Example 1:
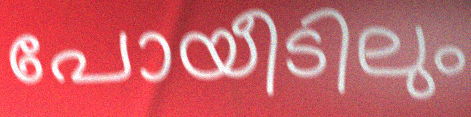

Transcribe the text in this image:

പോയീടിലും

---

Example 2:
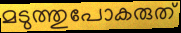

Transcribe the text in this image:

മടുത്തുപോകരുത്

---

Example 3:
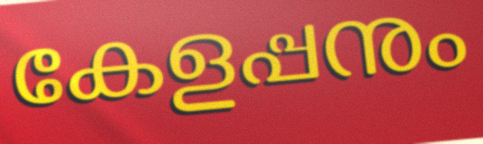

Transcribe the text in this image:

കേളപ്പനും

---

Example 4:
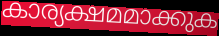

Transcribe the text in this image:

കാര്യക്ഷമമാക്കുക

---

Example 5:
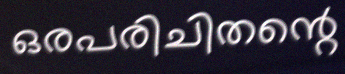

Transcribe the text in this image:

ഒരപരിചിതന്റെ